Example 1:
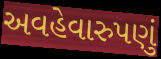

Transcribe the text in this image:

અવહેવારુપણું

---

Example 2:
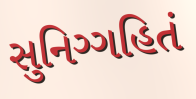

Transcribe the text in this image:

સુનિગ્ગહિતં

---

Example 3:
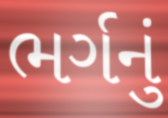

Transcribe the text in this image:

ભર્ગનું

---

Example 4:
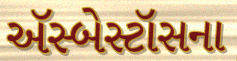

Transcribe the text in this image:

ઍસ્બેસ્ટૉસના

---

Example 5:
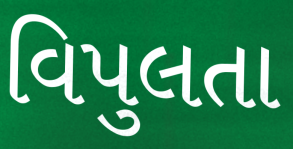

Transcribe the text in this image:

વિપુલતા